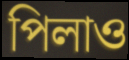
পিলাও